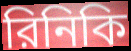
রিনিকি